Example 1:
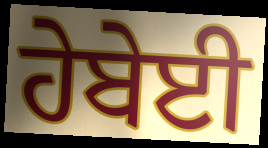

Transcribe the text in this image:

ਹੇਬੇਈ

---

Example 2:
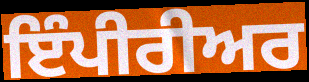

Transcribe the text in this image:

ਇੰਪੀਰੀਅਰ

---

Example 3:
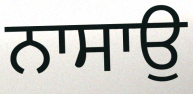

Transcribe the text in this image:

ਨਾਸਾਉ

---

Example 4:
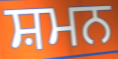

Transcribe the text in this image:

ਸ਼ਮਨ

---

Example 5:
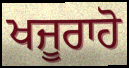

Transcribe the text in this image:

ਖਜੂਰਾਹੋ